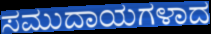
ಸಮುದಾಯಗಳಾದ